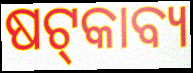
ଷଟ୍‌କାବ୍ୟ